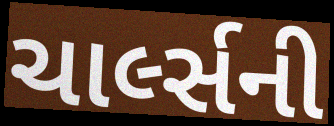
ચાર્લ્સની